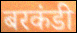
बरकंडी